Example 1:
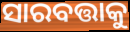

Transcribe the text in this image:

ସାରବତ୍ତାକୁ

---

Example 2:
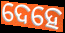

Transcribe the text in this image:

ଦେହେ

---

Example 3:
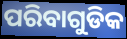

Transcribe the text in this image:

ପରିବାଗୁଡିକ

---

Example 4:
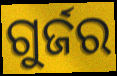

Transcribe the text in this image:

ଗୁର୍ଜର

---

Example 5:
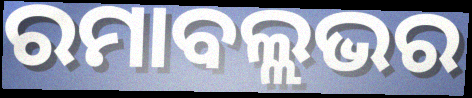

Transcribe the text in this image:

ରମାବଲ୍ଲଭର